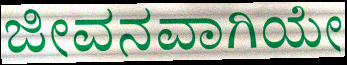
ಜೀವನವಾಗಿಯೇ